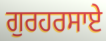
ਗੁਰਹਰਸਾਏ